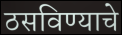
ठसविण्याचे